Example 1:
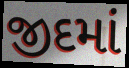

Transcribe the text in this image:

જીદમાં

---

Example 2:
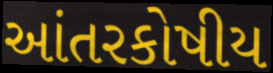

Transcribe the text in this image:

આંતરકોષીય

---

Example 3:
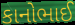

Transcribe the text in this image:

કાનોભાઈ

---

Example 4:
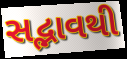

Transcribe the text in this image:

સદ્ભાવથી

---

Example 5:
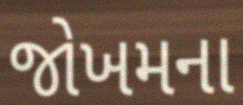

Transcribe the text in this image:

જોખમના